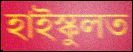
হাইস্কুলত